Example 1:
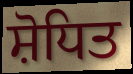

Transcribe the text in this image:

ਸ਼ੋਧਿਤ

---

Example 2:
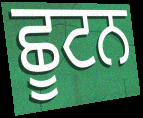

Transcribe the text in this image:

ਛੂਟਨ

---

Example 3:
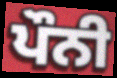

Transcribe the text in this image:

ਪੌਨੀ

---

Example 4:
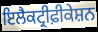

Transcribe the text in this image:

ਇਲੈਕਟ੍ਰੀਫ਼ੀਕੇਸ਼ਨ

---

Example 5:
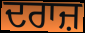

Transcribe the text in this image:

ਦਰਾਜ਼